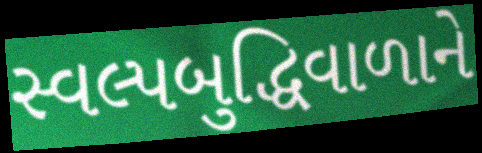
સ્વલ્પબુદ્ધિવાળાને